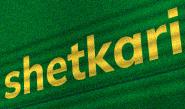
shetkari